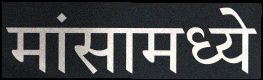
मांसामध्ये